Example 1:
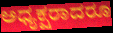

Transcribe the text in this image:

ಅಧ್ಯಕ್ಷರಾದರೂ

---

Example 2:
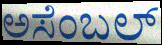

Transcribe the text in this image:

ಅಸೆಂಬಲ್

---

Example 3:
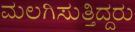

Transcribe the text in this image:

ಮಲಗಿಸುತ್ತಿದ್ದರು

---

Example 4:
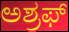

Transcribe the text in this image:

ಅಶ್ರಫ್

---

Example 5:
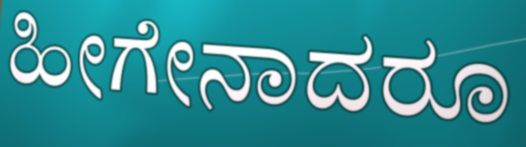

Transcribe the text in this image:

ಹೀಗೇನಾದರೂ